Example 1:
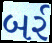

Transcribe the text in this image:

બર્ર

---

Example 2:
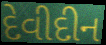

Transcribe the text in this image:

દેવીદીન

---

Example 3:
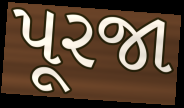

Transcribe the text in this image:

પૂરજા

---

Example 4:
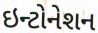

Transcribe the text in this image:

ઇન્ટોનેશન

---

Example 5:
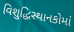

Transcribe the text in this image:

વિશુદ્ધિસ્થાનકોમાં